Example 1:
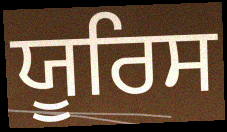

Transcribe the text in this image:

ਯੂਰਿਸ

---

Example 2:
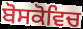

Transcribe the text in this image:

ਬੋਸਕੋਵਿਚ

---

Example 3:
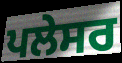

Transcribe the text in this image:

ਪਲੇਸਰ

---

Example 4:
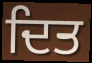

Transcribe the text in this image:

ਦਿਤ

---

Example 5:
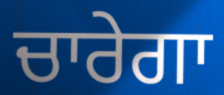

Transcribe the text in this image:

ਚਾਰੇਗਾ